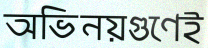
অভিনয়গুণেই